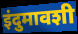
इंदुमावशी